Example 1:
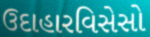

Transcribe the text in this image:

ઉદાહારવિસેસો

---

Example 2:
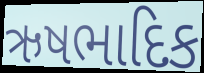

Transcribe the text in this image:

ઋષભાદિક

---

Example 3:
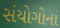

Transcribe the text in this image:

સંયોગોના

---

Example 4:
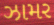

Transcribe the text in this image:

ઝામર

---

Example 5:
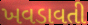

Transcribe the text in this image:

ખવડાવતી